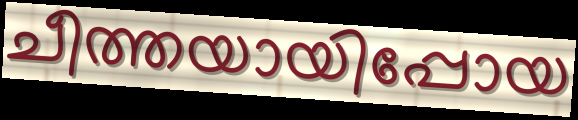
ചീത്തയായിപ്പോയ